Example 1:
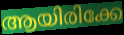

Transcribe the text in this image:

ആയിരിക്കേ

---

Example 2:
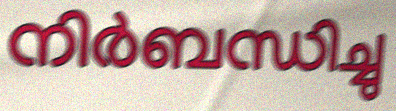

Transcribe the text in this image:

നിർബന്ധിച്ചു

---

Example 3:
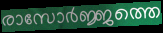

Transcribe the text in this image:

രാസോർജ്ജത്തെ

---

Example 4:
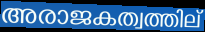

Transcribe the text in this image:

അരാജകത്വത്തില്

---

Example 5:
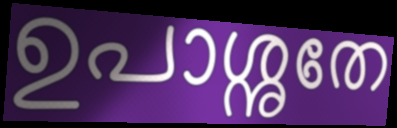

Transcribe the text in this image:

ഉപാശ്നുതേ